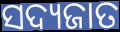
ସଦ୍ୟଜାତ